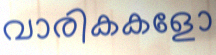
വാരികകളോ